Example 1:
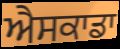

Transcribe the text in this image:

ਐਸਕਾਡਾ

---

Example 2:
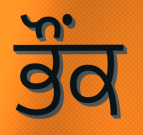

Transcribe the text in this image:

ਭੌਂਕ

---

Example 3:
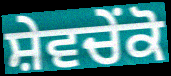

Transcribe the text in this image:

ਸ਼ੇਵਚੇਂਕੋ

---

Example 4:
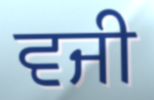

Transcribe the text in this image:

ਵਜੀ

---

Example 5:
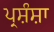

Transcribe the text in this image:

ਪ੍ਰਸ਼ੰਸ਼ਾ